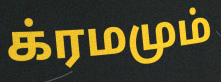
க்ரமமும்